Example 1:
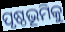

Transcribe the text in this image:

ପୃଷ୍ଠଭୂମିକୁ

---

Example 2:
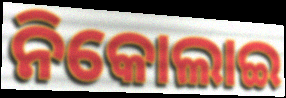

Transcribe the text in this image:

ନିକୋଲାଇ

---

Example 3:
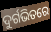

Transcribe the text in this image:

ଦୁର୍ଗଭିତରେ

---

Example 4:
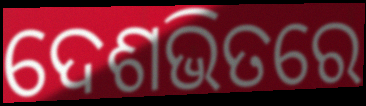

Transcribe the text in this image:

ଦେଶଭିତରେ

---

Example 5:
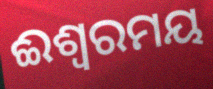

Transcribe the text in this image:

ଈଶ୍ଵରମୟ